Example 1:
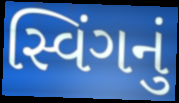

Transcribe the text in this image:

સ્વિંગનું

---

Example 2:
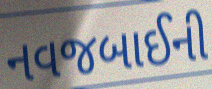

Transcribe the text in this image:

નવજબાઈની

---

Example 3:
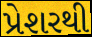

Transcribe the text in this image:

પ્રેશરથી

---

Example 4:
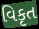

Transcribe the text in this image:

વિકૃત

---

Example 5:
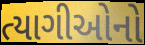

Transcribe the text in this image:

ત્યાગીઓનો